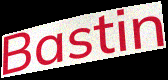
Bastin